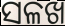
ସଳଖ